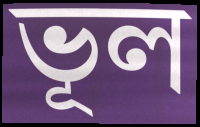
ভূল